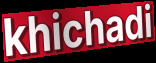
khichadi